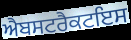
ਐਬਸਟਰੈਕਟਇਸ